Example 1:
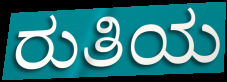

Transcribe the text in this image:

ರುತಿಯ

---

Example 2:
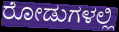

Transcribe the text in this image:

ರೋಡುಗಳಲ್ಲಿ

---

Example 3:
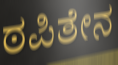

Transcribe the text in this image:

ಠಪಿತೇನ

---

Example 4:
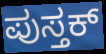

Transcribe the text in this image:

ಪುಸ್ತಕ್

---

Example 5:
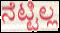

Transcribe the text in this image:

ನೆಟ್ಟಿಲ್ಲ